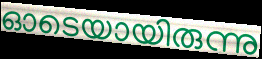
ഓടെയായിരുന്നു